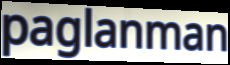
paglanman